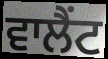
ਵਾਲੈਂਟ